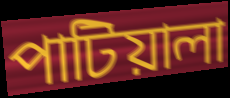
পাটিয়ালা